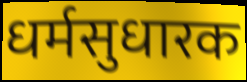
धर्मसुधारक